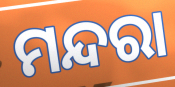
ମନ୍ଦରା